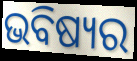
ଭବିଷ୍ୟର